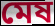
মেষ